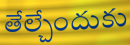
తేల్చేందుకు